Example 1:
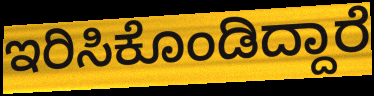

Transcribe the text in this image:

ಇರಿಸಿಕೊಂಡಿದ್ದಾರೆ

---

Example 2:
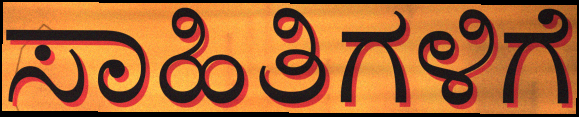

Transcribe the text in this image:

ಸಾಹಿತಿಗಳಿಗೆ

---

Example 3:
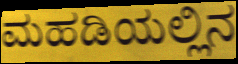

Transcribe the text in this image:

ಮಹಡಿಯಲ್ಲಿನ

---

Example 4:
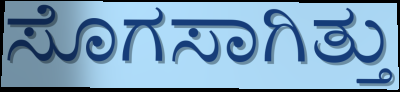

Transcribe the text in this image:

ಸೊಗಸಾಗಿತ್ತು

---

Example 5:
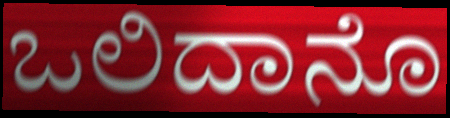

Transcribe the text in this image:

ಒಲಿದಾನೊ